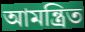
আমন্ত্ৰিত